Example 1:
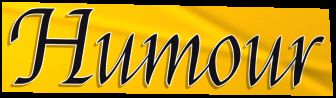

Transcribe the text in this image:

Humour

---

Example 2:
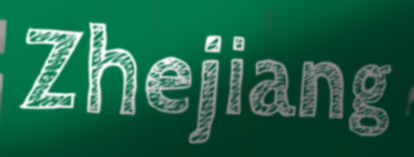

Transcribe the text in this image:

Zhejiang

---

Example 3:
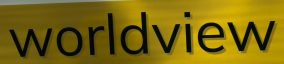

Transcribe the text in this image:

worldview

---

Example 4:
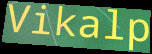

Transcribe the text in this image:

Vikalp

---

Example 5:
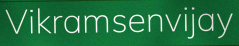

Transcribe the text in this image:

Vikramsenvijay